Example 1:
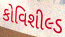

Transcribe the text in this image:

કોવિશીલ્ડ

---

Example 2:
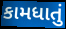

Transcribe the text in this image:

કામધાતું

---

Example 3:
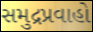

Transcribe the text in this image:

સમુદ્રપ્રવાહો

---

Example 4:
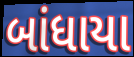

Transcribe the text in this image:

બાંધાયા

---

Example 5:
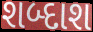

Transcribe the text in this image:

શબ્દાશ